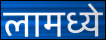
लामध्ये